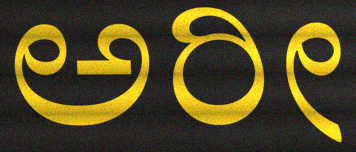
ಅರೀ